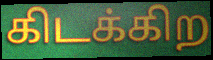
கிடக்கிற